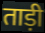
ताड़ी